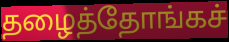
தழைத்தோங்கச்